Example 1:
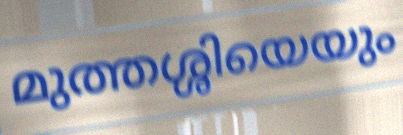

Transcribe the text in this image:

മുത്തശ്ശിയെയും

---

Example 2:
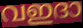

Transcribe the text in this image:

വഇദാ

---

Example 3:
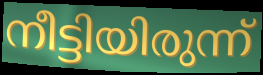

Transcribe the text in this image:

നീട്ടിയിരുന്ന്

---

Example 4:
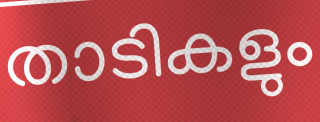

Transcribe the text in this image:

താടികളും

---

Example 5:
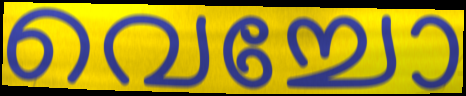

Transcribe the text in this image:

വെച്ചോ